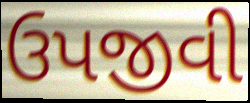
ઉપજીવી